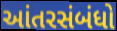
આંતરસંબંધો